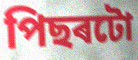
পিছৰটো